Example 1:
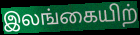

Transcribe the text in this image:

இலங்கையிற்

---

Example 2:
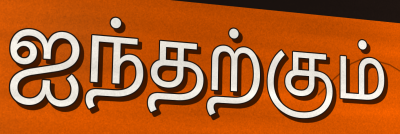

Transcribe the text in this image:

ஐந்தற்கும்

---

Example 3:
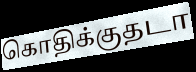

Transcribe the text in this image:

கொதிக்குதடா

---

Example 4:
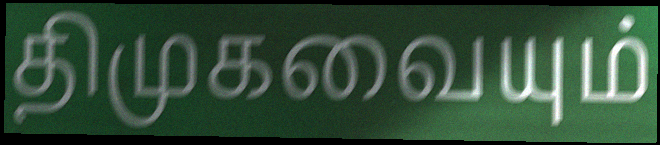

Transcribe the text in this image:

திமுகவையும்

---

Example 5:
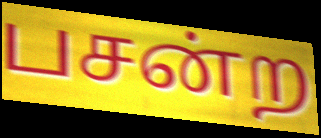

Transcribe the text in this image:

பசன்ற